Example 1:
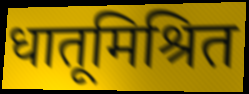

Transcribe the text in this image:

धातूमिश्रित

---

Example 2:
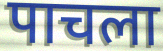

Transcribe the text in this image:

पाचला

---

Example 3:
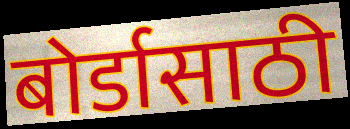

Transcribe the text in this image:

बोर्डासाठी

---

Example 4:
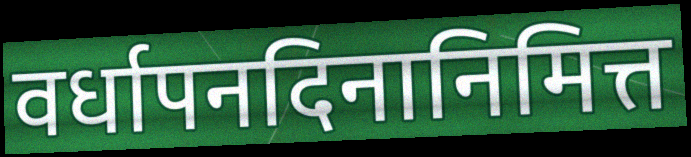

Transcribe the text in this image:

वर्धापनदिनानिमित्त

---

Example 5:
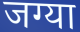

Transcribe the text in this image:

जग्या